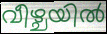
വീഴ്ചയിൽ